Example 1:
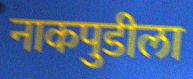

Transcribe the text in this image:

नाकपुडीला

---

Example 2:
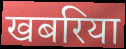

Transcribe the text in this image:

खबरिया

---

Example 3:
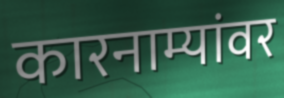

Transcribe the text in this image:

कारनाम्यांवर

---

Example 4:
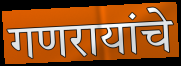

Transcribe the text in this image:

गणरायांचे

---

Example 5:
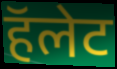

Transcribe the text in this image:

हॅलेट